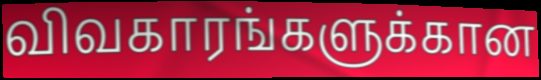
விவகாரங்களுக்கான